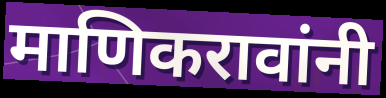
माणिकरावांनी